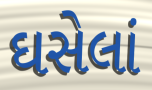
ઘસેલાં